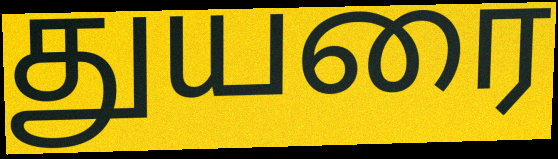
துயரை